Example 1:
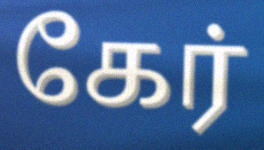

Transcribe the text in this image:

கேர்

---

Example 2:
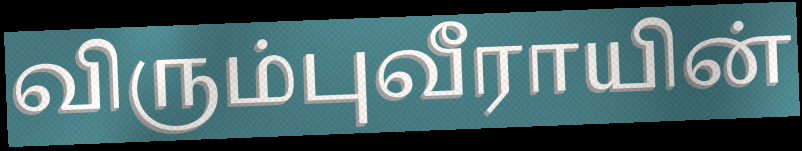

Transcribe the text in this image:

விரும்புவீராயின்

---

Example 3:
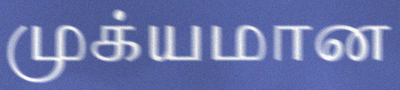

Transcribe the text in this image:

முக்யமான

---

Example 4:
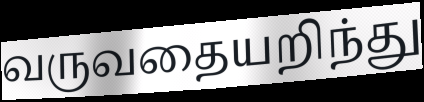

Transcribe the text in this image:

வருவதையறிந்து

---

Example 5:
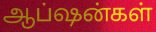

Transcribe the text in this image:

ஆப்ஷன்கள்